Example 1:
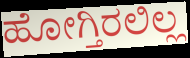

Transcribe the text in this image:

ಹೋಗ್ತಿರಲಿಲ್ಲ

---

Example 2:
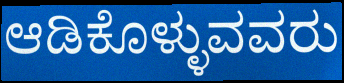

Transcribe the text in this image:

ಆಡಿಕೊಳ್ಳುವವರು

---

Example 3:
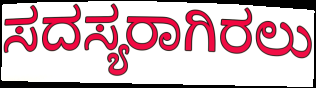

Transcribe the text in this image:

ಸದಸ್ಯರಾಗಿರಲು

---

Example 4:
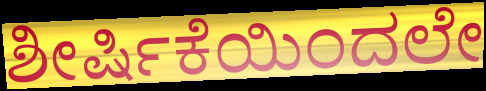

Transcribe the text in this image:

ಶೀರ್ಷಿಕೆಯಿಂದಲೇ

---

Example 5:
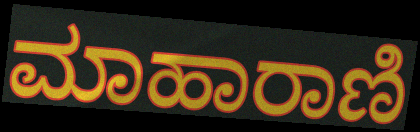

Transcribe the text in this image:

ಮಾಹಾರಾಣಿ